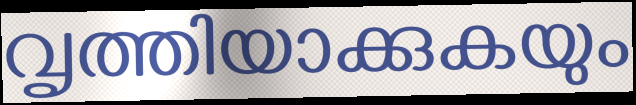
വൃത്തിയാക്കുകയും